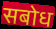
सबोध